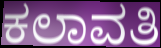
ಕಲಾವತಿ